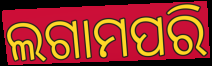
ଲଗାମପରି